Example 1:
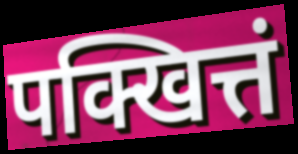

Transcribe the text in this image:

पक्खित्तं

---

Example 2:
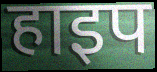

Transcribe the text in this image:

हाइप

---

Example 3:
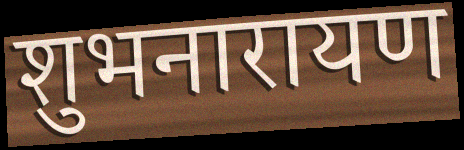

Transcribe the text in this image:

शुभनारायण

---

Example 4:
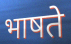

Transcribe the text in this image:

भाषते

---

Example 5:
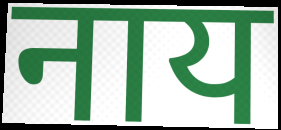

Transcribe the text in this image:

नाय